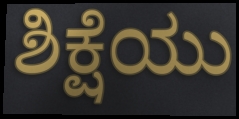
ಶಿಕ್ಷೆಯು